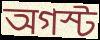
অগস্ট